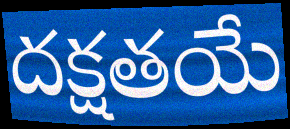
దక్షతయే